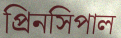
প্রিনসিপাল